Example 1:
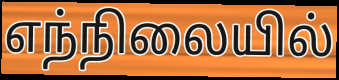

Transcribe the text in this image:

எந்நிலையில்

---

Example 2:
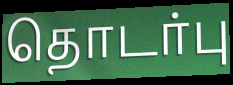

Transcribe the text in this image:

தொடர்பு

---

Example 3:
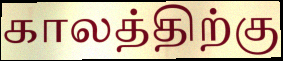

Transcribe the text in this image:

காலத்திற்கு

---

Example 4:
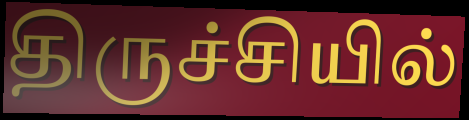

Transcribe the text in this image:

திருச்சியில்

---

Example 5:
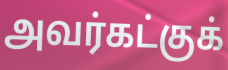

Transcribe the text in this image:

அவர்கட்குக்